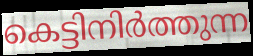
കെട്ടിനിർത്തുന്ന